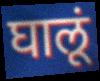
घालूं